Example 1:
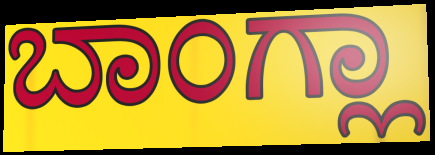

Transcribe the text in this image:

ಬಾಂಗ್ಲಾ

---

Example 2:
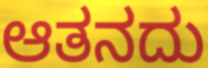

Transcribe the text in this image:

ಆತನದು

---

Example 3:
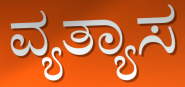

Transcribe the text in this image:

ವ್ಯತ್ಯಾಸ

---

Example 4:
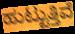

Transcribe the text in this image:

ಹುಟ್ಟುತ್ತಿವೆ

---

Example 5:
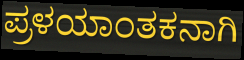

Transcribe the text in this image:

ಪ್ರಳಯಾಂತಕನಾಗಿ